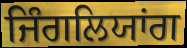
ਜਿੰਗਲਿਯਾਂਗ